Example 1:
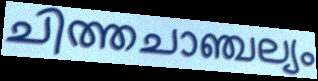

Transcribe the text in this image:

ചിത്തചാഞ്ചല്യം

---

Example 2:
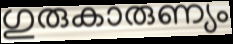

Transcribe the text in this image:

ഗുരുകാരുണ്യം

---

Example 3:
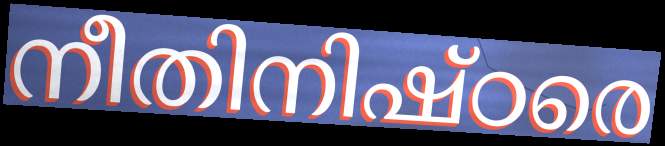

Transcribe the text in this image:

നീതിനിഷ്ഠരെ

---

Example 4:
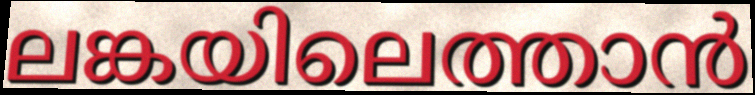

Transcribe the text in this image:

ലങ്കയിലെത്താൻ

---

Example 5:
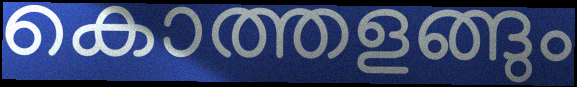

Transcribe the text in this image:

കൊത്തളങ്ങും